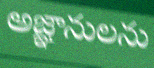
అజ్ఞానులను